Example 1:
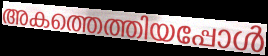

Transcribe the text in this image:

അകത്തെത്തിയപ്പോൾ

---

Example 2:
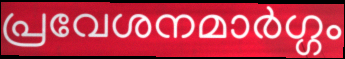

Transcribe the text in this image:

പ്രവേശനമാർഗ്ഗം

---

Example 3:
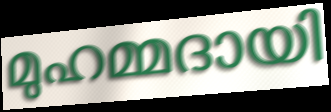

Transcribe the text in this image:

മുഹമ്മദായി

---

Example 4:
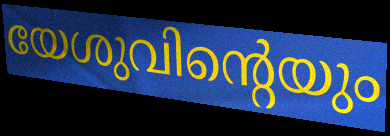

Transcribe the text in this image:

യേശുവിന്റെയും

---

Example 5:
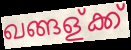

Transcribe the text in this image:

ഖങ്ങള്ക്ക്